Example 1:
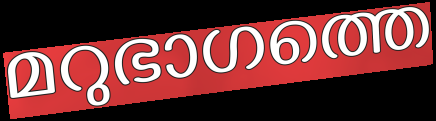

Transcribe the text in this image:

മറുഭാഗത്തെ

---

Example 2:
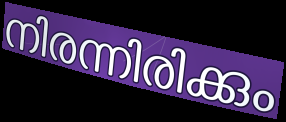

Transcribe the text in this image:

നിരന്നിരിക്കും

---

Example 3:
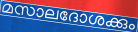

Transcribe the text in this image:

മസാലദോശക്കും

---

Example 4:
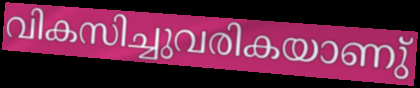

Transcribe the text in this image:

വികസിച്ചുവരികയാണു്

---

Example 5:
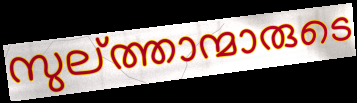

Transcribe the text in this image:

സുല്ത്താന്മാരുടെ